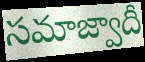
సమాజ్వాదీ